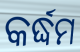
କର୍ଦ୍ଧମ